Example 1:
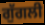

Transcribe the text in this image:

ਗੁੱਗਲੀ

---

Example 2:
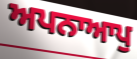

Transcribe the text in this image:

ਅਪਨਾਆਪੁ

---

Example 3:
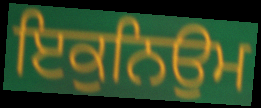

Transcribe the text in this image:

ਇਕੁਨਿਉਮ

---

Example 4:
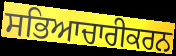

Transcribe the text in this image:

ਸਭਿਆਚਾਰੀਕਰਨ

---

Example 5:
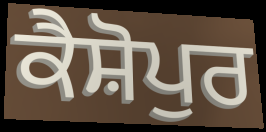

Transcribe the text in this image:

ਕੈਸ਼ੋਪੁਰ